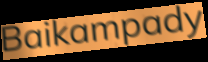
Baikampady